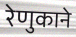
रेणुकाने